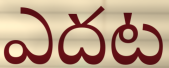
ఎదట